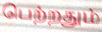
பெற்றதும்